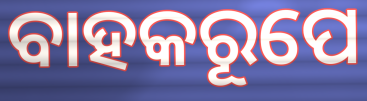
ବାହକରୂପେ